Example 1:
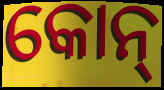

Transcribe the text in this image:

କୋନ୍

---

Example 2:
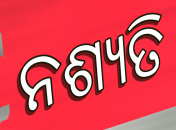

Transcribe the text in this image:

ନଶ୍ୟତି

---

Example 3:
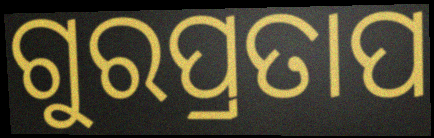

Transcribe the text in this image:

ଗୁରପ୍ରତାପ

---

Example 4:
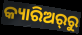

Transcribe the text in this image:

କ୍ୟାରିଅର୍‌ରୁ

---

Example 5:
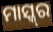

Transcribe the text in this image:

ମାସ୍କ୍‌ର